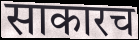
साकारच